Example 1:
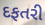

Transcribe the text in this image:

દફતરી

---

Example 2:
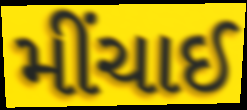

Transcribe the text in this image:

મીંચાઈ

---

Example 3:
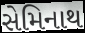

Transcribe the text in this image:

સેમિનાથ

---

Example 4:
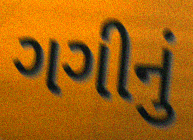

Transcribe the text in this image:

ગગીનું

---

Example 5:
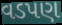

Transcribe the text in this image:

વડપણ